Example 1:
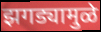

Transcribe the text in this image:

झगड्यामुळे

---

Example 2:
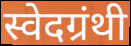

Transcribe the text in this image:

स्वेदग्रंथी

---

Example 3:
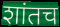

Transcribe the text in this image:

शांतच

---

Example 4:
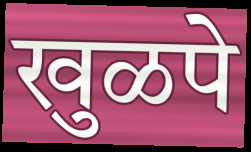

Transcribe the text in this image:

खुळपे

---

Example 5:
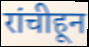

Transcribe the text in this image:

रांचीहून